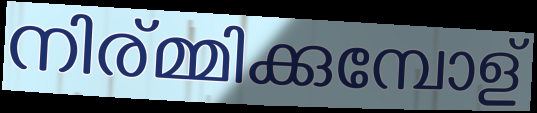
നിര്മ്മിക്കുമ്പോള്